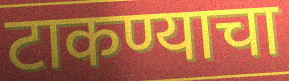
टाकण्याचा